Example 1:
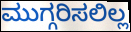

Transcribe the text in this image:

ಮುಗ್ಗರಿಸಲಿಲ್ಲ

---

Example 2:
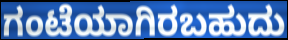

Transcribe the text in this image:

ಗಂಟೆಯಾಗಿರಬಹುದು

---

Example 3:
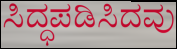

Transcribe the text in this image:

ಸಿದ್ಧಪಡಿಸಿದವು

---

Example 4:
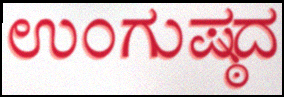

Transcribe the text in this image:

ಉಂಗುಷ್ಠದ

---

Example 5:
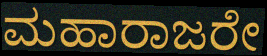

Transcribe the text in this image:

ಮಹಾರಾಜರೇ